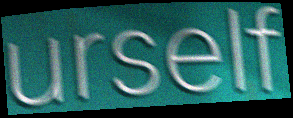
urself